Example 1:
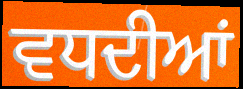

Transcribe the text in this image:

ਵਧਦੀਆਂ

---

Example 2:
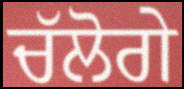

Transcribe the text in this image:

ਚੱਲੋਗੇ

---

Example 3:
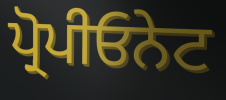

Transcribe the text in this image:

ਪ੍ਰੋਪੀਓਨੇਟ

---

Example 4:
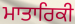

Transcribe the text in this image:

ਮਾਤਾਰਿਕੀ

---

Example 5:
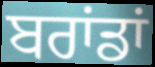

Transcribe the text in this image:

ਬਰਾਂਡਾਂ